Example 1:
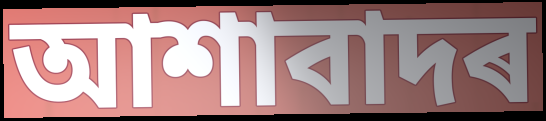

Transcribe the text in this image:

আশাবাদৰ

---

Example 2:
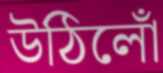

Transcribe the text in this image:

উঠিলোঁ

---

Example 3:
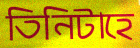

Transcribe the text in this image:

তিনিটাহে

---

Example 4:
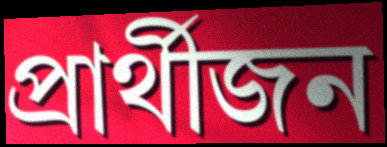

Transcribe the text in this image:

প্ৰাৰ্থীজন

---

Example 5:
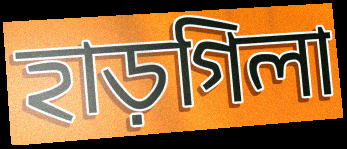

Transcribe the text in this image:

হাড়গিলা